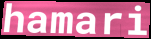
hamari